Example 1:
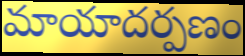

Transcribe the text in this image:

మాయాదర్పణం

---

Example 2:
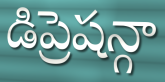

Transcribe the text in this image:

డిప్రెషన్గా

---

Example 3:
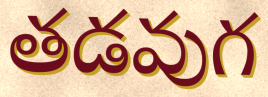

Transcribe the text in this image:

తడవుగ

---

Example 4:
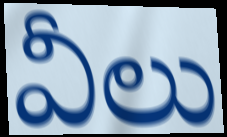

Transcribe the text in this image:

వీలు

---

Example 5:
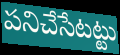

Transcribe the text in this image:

పనిచేసేటట్టు